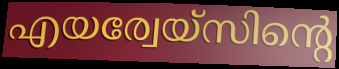
എയര്വേയ്സിന്റെ